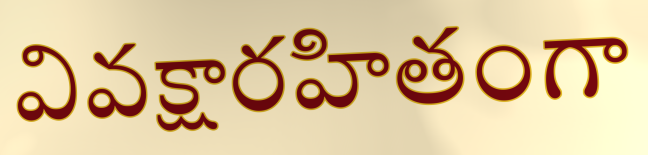
వివక్షారహితంగా